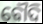
ବୌଦି